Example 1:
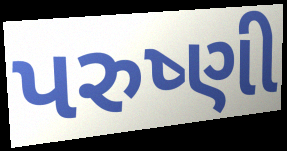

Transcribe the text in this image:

પરુષ્ણી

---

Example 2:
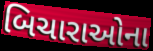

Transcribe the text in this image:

બિચારાઓના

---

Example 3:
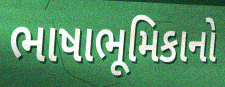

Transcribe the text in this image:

ભાષાભૂમિકાનો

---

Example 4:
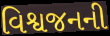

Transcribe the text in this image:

વિશ્વજનની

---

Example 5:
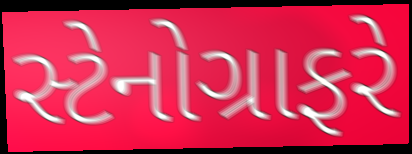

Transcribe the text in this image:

સ્ટેનોગ્રાફરે